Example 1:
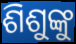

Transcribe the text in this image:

ଶିଶୁଙ୍କୁ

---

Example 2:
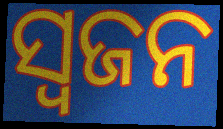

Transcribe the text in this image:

ସ୍ୱଜନ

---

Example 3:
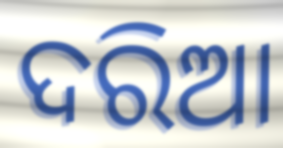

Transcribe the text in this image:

ଦରିଆ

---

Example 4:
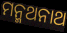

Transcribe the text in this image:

ମନ୍ମଥନାଥ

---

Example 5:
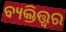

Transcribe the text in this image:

ବ୍ୟକ୍ତିତ୍ତ୍ଵର